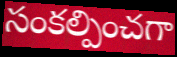
సంకల్పించగా